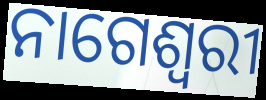
ନାଗେଶ୍ୱରୀ